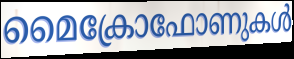
മൈക്രോഫോണുകൾ